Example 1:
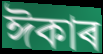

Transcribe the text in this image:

ঈকাৰ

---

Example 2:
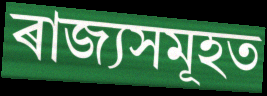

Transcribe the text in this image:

ৰাজ্যসমূহত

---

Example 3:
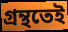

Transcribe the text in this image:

গ্ৰন্থতেই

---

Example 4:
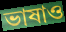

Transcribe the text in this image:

ভাষাও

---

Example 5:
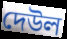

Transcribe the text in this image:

দেউল